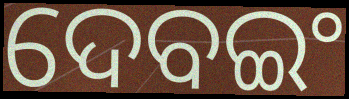
ଦେବଇଂ